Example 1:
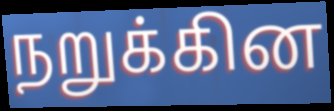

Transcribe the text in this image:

நறுக்கின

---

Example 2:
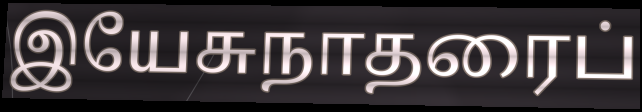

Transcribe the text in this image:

இயேசுநாதரைப்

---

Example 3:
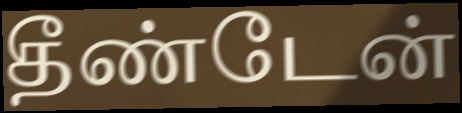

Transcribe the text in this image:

தீண்டேன்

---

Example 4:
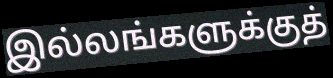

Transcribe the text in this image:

இல்லங்களுக்குத்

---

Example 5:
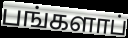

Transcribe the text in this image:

பங்களாப்